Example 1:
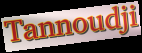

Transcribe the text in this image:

Tannoudji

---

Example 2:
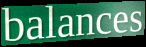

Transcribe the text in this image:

balances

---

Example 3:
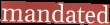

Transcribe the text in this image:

mandated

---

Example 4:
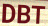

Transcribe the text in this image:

DBT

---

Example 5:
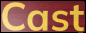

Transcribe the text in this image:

Cast